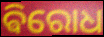
ଵିରୋଧ